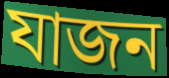
যাজন